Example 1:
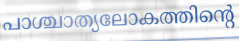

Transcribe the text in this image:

പാശ്ചാത്യലോകത്തിന്റെ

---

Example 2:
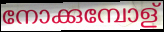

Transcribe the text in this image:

നോക്കുമ്പോള്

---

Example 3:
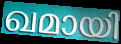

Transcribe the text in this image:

ഖമായി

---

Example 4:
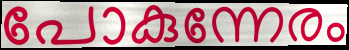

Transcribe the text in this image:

പോകുന്നേരം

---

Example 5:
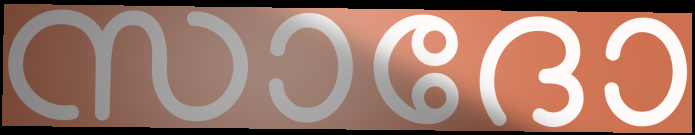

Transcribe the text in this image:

സാദോ